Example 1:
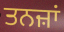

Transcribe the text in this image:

ਤਨਜ਼ਾਂ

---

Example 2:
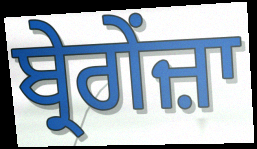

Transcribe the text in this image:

ਬ੍ਰੇਗੇਂਜ਼ਾ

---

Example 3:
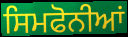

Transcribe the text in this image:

ਸਿਮਫੋਨੀਆਂ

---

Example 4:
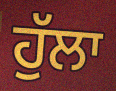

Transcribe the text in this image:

ਹੁੱਲਾ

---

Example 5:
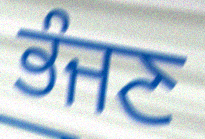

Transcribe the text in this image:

ਭੰਜਣ